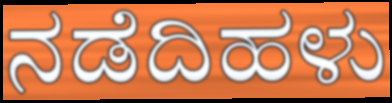
ನಡೆದಿಹಳು